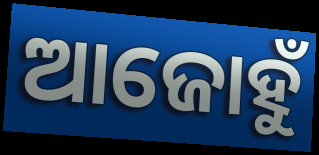
ଆଜୋହୁଁ